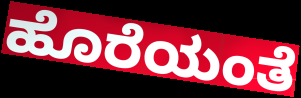
ಹೊರೆಯಂತೆ